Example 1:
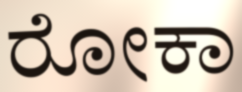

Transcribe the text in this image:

ರೋಕಾ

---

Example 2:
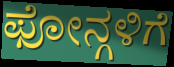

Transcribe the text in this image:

ಫೋನ್ಗಳಿಗೆ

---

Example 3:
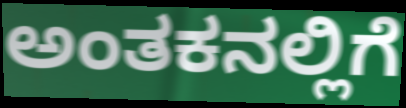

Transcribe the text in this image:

ಅಂತಕನಲ್ಲಿಗೆ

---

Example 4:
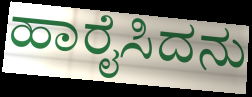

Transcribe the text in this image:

ಹಾರೈಸಿದನು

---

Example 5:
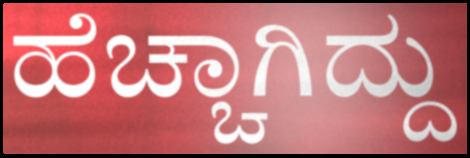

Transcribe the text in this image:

ಹೆಚ್ಚಾಗಿದ್ದು